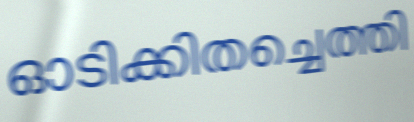
ഓടിക്കിതച്ചെത്തി